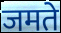
जमते